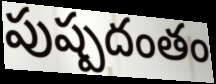
పుష్పదంతం